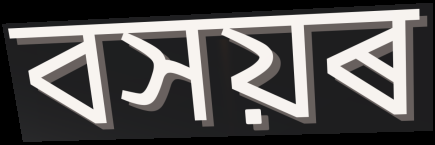
বসয়ৰ